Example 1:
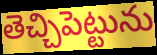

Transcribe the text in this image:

తెచ్చిపెట్టును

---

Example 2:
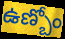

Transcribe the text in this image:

ఉణ్బోం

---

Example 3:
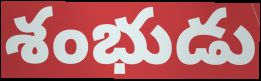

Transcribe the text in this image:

శంభుడు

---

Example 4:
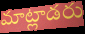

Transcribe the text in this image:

మాట్లాడరు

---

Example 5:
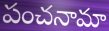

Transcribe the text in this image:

పంచనామా